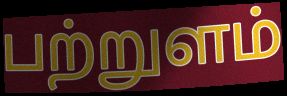
பற்றுளம்